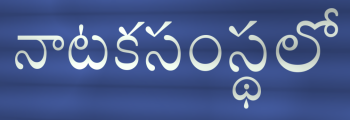
నాటకసంస్థలో